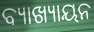
ବ୍ୟାଖ୍ୟାୟନ